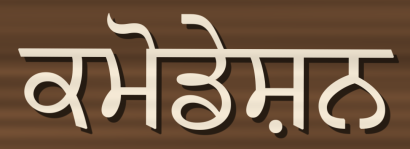
ਕਮੋਡੇਸ਼ਨ